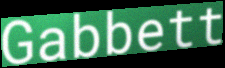
Gabbett